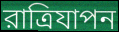
রাত্রিযাপন